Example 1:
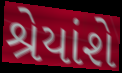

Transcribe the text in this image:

શ્રેયાંશે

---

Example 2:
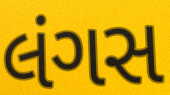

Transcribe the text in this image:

લંગસ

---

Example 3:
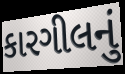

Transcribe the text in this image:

કારગીલનું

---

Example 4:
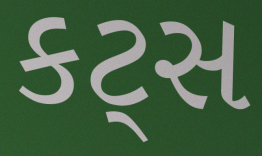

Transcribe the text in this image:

કટ્સ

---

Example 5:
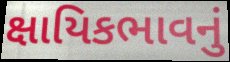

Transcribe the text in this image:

ક્ષાયિકભાવનું